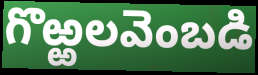
గొఱ్ఱలవెంబడి